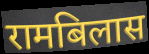
रामबिलास